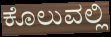
ಕೊಲುವಲ್ಲಿ